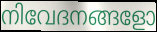
നിവേദനങ്ങളോ